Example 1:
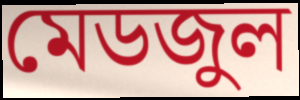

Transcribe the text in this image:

মেডজুল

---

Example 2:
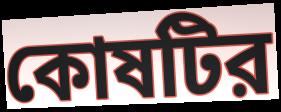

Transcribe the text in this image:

কোষটির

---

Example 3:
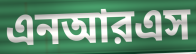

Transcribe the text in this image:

এনআরএস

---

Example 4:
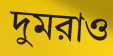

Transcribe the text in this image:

দুমরাও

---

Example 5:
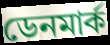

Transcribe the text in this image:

ডেনমার্ক